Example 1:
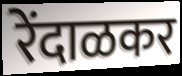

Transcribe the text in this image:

रेंदाळकर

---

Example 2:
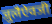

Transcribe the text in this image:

जुलैऐवजी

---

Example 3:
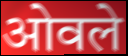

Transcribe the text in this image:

ओवले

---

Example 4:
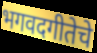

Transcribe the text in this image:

भगवदगीतेचे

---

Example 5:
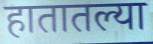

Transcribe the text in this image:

हातातल्या